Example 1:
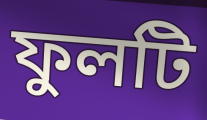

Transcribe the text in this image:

ফুলটি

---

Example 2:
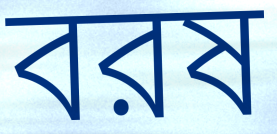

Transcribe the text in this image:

বরষ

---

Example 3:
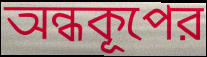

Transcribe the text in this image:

অন্ধকূপের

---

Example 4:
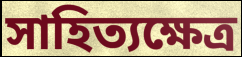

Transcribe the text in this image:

সাহিত্যক্ষেত্র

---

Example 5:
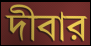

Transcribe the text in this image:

দীবার